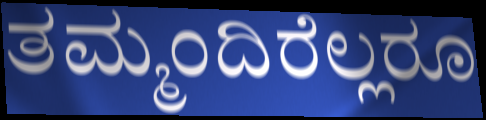
ತಮ್ಮಂದಿರೆಲ್ಲರೂ